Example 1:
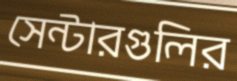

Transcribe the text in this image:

সেন্টারগুলির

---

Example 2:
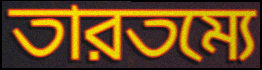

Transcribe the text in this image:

তারতম্যে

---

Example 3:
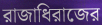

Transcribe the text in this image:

রাজাধিরাজের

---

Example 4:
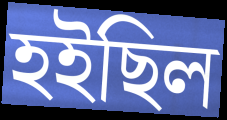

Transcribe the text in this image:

হইছিল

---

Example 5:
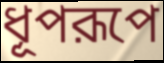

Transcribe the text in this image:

ধূপরূপে